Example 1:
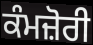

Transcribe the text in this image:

ਕੰਮਜ਼ੋਰੀ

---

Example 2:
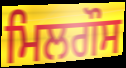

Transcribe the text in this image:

ਮਿਲਗੌਸ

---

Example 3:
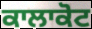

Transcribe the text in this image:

ਕਾਲਾਕੋਟ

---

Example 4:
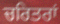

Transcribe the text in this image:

ਚਰਿਤਰਾਂ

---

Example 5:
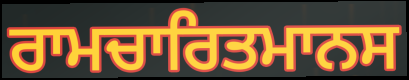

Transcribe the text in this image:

ਰਾਮਚਾਰਿਤਮਾਨਸ